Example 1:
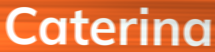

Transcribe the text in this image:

Caterina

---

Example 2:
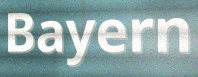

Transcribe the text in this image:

Bayern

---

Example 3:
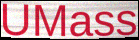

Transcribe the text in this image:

UMass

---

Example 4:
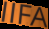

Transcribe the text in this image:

IIFA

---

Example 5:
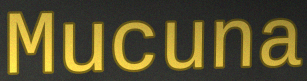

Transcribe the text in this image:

Mucuna